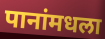
पानांमधला